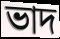
ভাদ